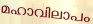
മഹാവിലാപം